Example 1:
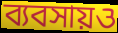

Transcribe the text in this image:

ব্যবসায়ও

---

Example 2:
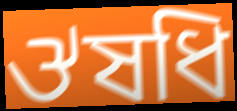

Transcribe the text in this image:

ঔষধি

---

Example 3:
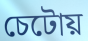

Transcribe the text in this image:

চেটোয়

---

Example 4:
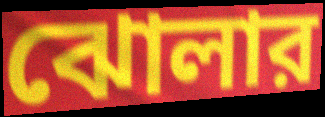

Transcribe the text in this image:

ঝোলার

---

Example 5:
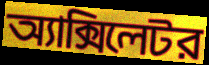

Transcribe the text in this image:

অ্যাক্সিলেটর